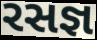
રસજ્ઞ